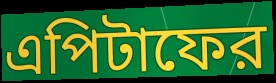
এপিটাফের